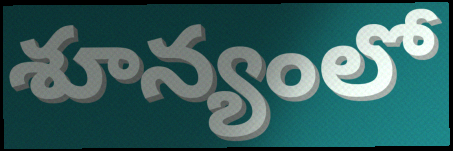
శూన్యంలో